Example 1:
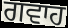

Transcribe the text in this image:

ਗਵਾਹ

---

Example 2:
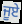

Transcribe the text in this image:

ਜੂਏ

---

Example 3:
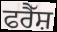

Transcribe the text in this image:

ਫਰੈੱਸ਼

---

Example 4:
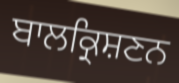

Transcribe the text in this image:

ਬਾਲਕ੍ਰਿਸ਼ਣਨ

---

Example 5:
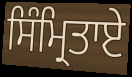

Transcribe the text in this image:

ਸਿੰਮ੍ਰਿਤਾਏ